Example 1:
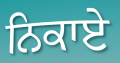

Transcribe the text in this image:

ਨਿਕਾਏ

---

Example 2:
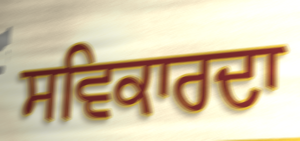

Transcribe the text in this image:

ਸਵਿਕਾਰਦਾ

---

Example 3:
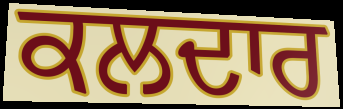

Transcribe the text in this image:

ਕਲਦਾਰ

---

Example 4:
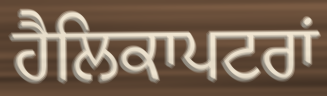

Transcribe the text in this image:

ਹੈਲਿਕਾਪਟਰਾਂ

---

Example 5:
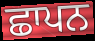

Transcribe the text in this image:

ਛਾਪਨ